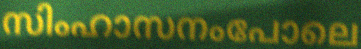
സിംഹാസനംപോലെ